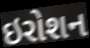
ઇરોશન